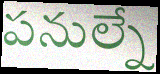
పనుల్నే